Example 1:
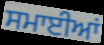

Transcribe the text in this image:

ਸਮਾਈਆਂ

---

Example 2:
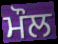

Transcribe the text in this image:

ਮੌਲ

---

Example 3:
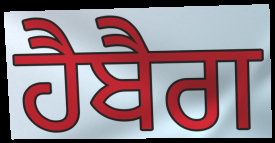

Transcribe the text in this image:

ਹੈਬੈਗ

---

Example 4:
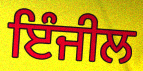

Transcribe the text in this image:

ਇੰਜੀਲ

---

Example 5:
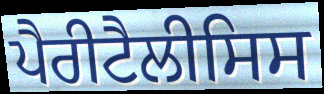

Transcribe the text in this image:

ਪੈਰੀਟੈਲੀਸਿਸ